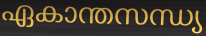
ഏകാന്തസന്ധ്യ